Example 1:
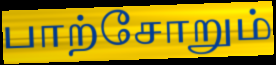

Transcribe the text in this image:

பாற்சோறும்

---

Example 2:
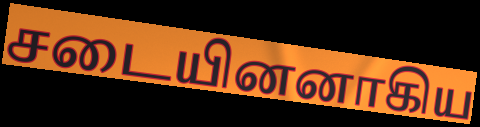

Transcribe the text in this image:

சடையினனாகிய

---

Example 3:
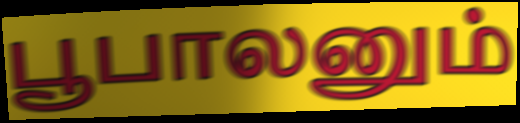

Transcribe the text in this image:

பூபாலனும்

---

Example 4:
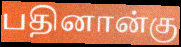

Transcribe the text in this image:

பதினான்கு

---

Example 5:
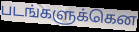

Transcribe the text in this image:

படங்களுக்கென